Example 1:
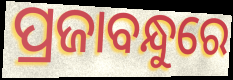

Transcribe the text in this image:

ପ୍ରଜାବନ୍ଧୁରେ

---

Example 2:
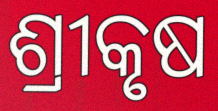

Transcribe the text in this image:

ଶ୍ରୀକୃଷ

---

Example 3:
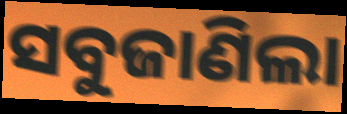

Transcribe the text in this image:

ସବୁଜାଣିଲା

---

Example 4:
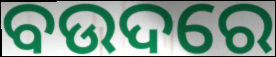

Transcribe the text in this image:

ବଉଦରେ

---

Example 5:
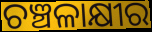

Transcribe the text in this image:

ଚଞ୍ଚଳାକ୍ଷୀର